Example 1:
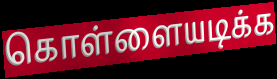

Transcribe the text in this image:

கொள்ளையடிக்க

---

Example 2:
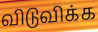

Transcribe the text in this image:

விடுவிக்க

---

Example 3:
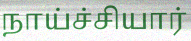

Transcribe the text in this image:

நாய்ச்சியார்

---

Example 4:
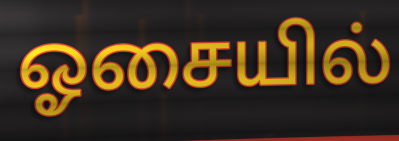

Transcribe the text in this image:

ஓசையில்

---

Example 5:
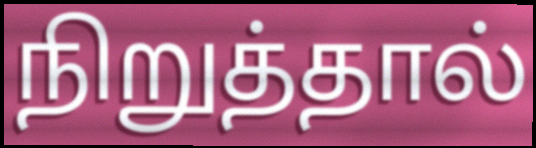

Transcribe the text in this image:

நிறுத்தால்